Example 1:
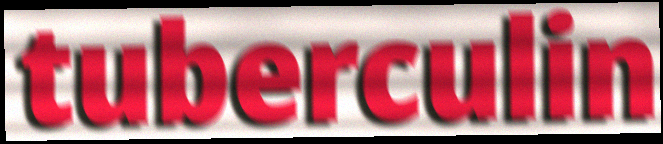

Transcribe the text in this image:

tuberculin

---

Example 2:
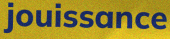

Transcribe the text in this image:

jouissance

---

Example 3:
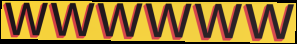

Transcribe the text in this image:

wwwwww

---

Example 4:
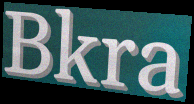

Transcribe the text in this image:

Bkra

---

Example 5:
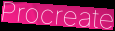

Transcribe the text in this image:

Procreate